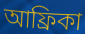
আফ্ৰিকা